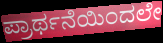
ಪ್ರಾರ್ಥನೆಯಿಂದಲೇ